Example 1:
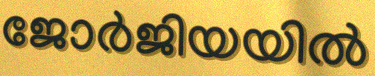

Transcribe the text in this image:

ജോർജിയയിൽ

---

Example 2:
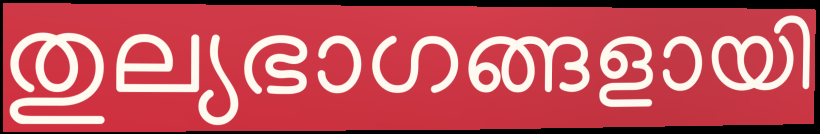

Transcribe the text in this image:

തുല്യഭാഗങ്ങളായി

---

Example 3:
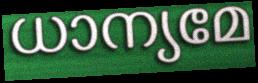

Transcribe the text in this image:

ധാന്യമേ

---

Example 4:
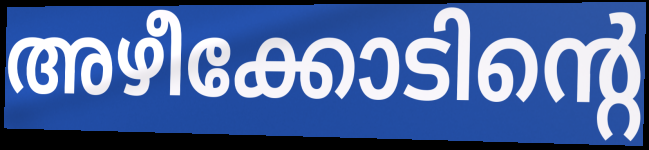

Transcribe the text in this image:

അഴീക്കോടിന്റെ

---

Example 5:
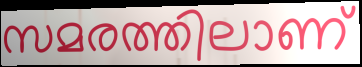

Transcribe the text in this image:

സമരത്തിലാണ്